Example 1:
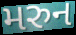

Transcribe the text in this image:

મરુન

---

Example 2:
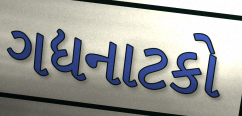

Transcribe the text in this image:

ગદ્યનાટકો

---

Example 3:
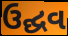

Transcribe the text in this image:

ઉદ્ઘવ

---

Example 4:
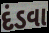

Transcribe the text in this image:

દંડવા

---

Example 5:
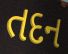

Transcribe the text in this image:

તદન